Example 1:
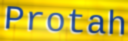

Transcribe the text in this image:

Protah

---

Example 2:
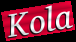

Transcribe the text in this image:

Kola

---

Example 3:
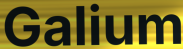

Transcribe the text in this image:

Galium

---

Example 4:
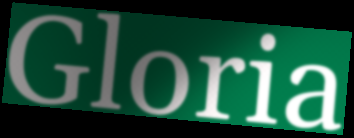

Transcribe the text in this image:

Gloria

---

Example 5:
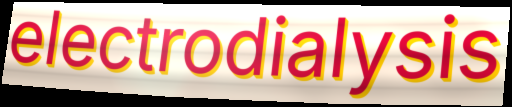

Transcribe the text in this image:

electrodialysis